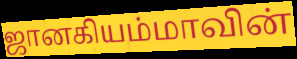
ஜானகியம்மாவின்